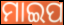
ମାଇପ